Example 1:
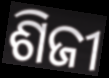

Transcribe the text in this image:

ଶିଜୀ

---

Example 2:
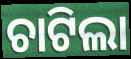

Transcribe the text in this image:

ଚାଟିଲା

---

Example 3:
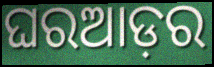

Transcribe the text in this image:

ଘରଆଡ଼ର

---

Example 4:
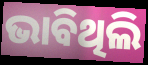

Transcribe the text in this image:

ଭାବିଥିଲି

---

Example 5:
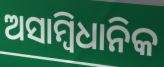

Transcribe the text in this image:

ଅସାମ୍ବିଧାନିକ